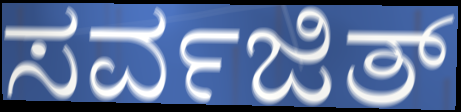
ಸರ್ವಜಿತ್